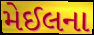
મેઈલના